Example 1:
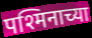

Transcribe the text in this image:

पश्मिनाच्या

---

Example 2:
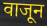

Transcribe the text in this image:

वाजून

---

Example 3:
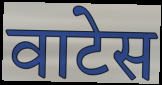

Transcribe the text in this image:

वाटेस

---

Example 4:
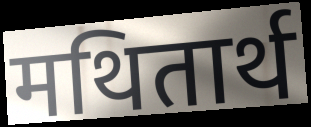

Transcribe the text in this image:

मथितार्थ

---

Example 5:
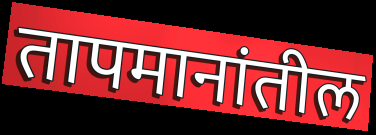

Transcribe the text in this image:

तापमानांतील